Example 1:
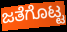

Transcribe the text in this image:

ಜತೆಗೊಟ್ಟ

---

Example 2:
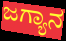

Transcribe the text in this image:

ಜಗ್ಯಾನ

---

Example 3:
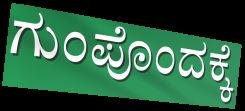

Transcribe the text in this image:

ಗುಂಪೊಂದಕ್ಕೆ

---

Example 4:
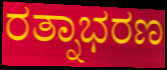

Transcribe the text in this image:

ರತ್ನಾಭರಣ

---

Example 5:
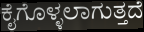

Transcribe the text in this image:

ಕೈಗೊಳ್ಳಲಾಗುತ್ತದೆ